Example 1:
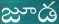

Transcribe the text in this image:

జూడ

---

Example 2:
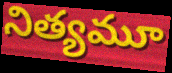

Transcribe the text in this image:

నిత్యమూ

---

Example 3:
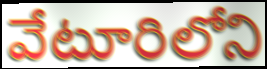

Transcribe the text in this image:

వేటూరిలోని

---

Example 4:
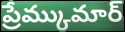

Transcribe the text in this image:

ప్రేమ్కుమార్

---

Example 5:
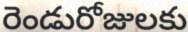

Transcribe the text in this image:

రెండురోజులకు